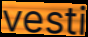
vesti